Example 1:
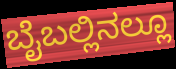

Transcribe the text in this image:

ಬೈಬಲ್ಲಿನಲ್ಲೂ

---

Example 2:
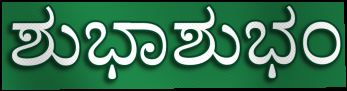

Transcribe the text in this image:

ಶುಭಾಶುಭಂ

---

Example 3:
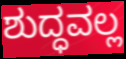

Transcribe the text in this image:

ಶುದ್ಧವಲ್ಲ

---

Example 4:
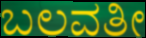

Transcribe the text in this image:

ಬಲವತೀ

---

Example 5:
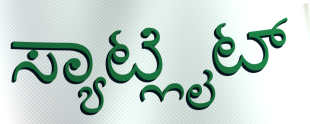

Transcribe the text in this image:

ಸ್ಯಾಟ್ಲೈಟ್